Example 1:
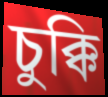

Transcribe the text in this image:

চুক্কি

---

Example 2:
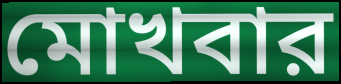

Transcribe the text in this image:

মোখবার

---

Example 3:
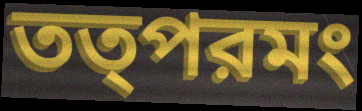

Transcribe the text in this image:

তত্পরমং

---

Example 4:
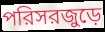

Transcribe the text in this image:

পরিসরজুড়ে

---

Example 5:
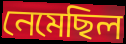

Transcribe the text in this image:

নেমেছিল